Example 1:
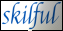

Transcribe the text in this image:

skilful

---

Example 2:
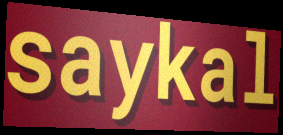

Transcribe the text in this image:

saykal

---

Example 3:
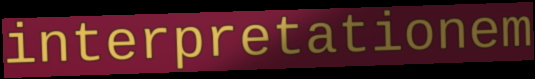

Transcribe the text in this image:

interpretationem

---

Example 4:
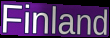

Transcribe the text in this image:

Finland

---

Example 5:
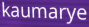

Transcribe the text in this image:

kaumarye